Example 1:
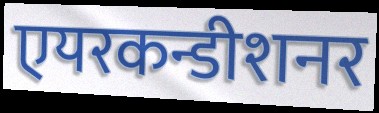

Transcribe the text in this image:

एयरकन्डीशनर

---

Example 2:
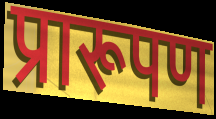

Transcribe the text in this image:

प्रारूपण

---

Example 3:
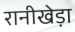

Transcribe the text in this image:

रानीखेड़ा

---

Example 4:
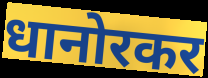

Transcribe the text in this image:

धानोरकर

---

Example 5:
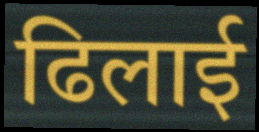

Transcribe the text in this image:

ढिलाई